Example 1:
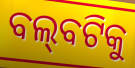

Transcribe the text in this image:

ବଲ୍‌ବଟିକୁ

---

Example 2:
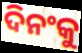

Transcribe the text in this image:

ଦିନଂକୁ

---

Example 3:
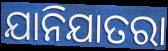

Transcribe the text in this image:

ଯାନିଯାତରା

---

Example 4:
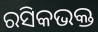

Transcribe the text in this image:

ରସିକଭକ୍ତ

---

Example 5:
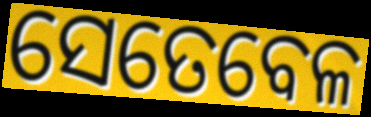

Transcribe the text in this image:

ସେତେବେଳ